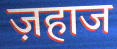
ज़हाज